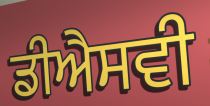
ਡੀਐਸਵੀ